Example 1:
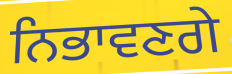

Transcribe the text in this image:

ਨਿਭਾਵਣਗੇ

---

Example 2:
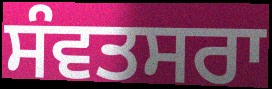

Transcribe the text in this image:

ਸੰਵਤਸਰਾ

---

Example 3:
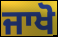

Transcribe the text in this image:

ਜਾਖੋ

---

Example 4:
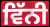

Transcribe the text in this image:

ਵਿੱਨੀ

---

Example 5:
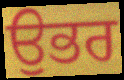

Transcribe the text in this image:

ਉਭਰ